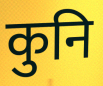
कुनि